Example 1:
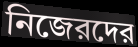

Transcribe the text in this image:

নিজেরদের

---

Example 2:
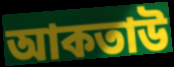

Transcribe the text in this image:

আকতাউ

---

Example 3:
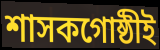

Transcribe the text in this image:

শাসকগোষ্ঠীই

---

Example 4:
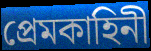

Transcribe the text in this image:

প্রেমকাহিনী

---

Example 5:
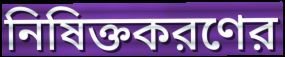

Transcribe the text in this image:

নিষিক্তকরণের